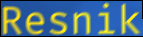
Resnik